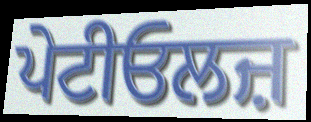
ਪੇਟੀਓਲਜ਼